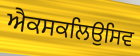
ਐਕਸਕਲਿਉਸਿਵ